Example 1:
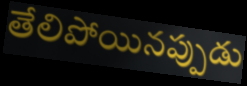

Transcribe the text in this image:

తేలిపోయినప్పుడు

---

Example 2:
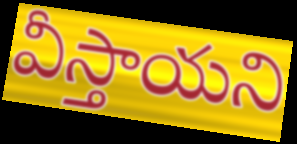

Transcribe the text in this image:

వీస్తాయని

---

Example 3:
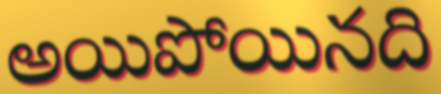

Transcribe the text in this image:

అయిపోయినది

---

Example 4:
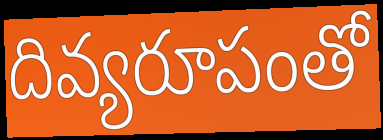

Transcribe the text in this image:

దివ్యరూపంతో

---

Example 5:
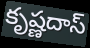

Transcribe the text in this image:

కృష్ణదాస్